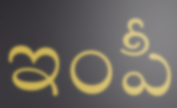
ఇంపీ